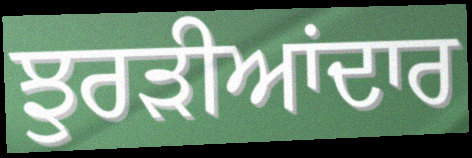
ਝੁਰੜੀਆਂਦਾਰ